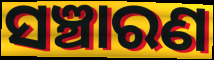
ସଞ୍ଚାରଣ